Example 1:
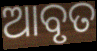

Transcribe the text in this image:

ଆବୃତ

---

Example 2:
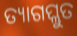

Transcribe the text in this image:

ତ୍ୟାଗପ୍ଲୁତ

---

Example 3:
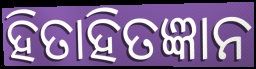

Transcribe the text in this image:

ହିତାହିତଜ୍ଞାନ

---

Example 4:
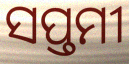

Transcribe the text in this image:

ସପ୍ତମୀ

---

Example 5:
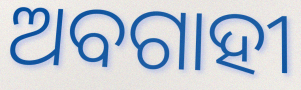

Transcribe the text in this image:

ଅବଗାହୀ